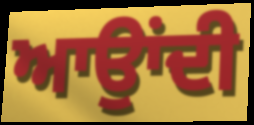
ਆਉਾਂਦੀ